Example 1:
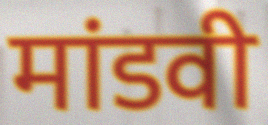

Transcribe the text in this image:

मांडवी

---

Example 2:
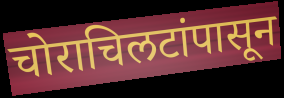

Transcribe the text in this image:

चोराचिलटांपासून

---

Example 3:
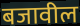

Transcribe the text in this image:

बजावील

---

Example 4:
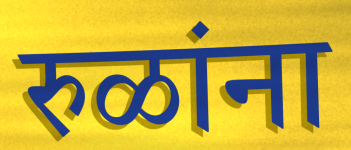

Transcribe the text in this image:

रुळांना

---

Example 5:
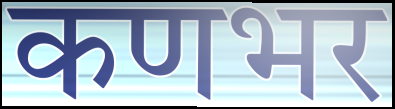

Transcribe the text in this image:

कणभर